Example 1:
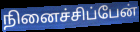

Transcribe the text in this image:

நினைச்சிப்பேன்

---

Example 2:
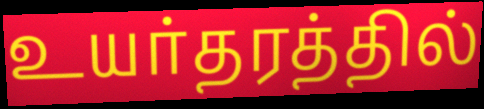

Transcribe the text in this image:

உயர்தரத்தில்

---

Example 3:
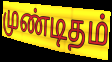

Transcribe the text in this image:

முண்டிதம்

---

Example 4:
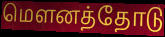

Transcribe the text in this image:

மௌனத்தோடு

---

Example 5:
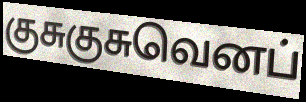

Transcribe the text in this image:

குசுகுசுவெனப்